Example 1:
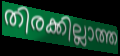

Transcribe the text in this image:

തിരക്കില്ലാത്ത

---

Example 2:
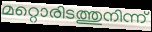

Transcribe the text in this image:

മറ്റൊരിടത്തുനിന്ന്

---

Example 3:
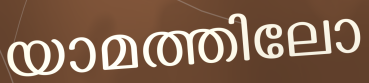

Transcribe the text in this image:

യാമത്തിലോ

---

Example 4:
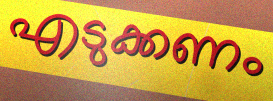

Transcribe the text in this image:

എടുക്കണം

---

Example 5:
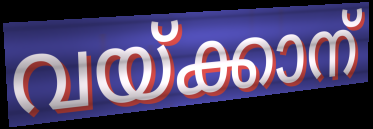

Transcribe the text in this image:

വയ്ക്കാന്